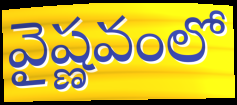
వైష్ణవంలో